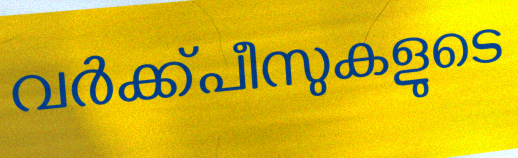
വർക്ക്പീസുകളുടെ